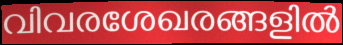
വിവരശേഖരങ്ങളിൽ